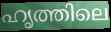
ഹൃത്തിലെ